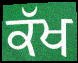
ਕੱਖ